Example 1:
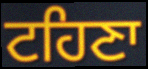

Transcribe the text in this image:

ਟਹਿਣਾ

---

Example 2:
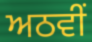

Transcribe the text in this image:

ਅਠਵੀਂ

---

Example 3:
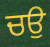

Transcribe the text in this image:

ਚਉ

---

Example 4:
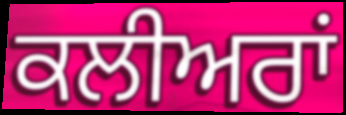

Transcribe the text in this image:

ਕਲੀਅਰਾਂ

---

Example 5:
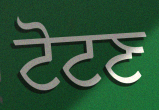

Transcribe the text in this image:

ਟੋਟਣ